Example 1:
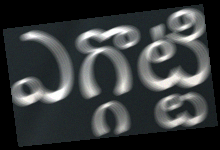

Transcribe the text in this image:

ఎగ్గొట్టి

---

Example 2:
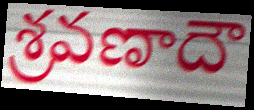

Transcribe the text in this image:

శ్రవణాదౌ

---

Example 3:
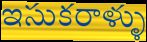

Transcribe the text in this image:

ఇసుకరాళ్ళు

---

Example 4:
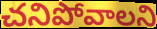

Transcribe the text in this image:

చనిపోవాలని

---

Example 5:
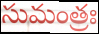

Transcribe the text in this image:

సుమంత్రః